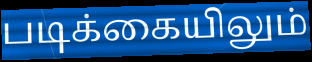
படிக்கையிலும்